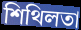
শিথিলতা